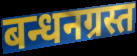
बन्धनग्रस्त